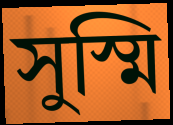
সুস্মি